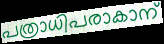
പത്രാധിപരാകാന്